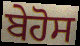
ਬੇਹੋਸ